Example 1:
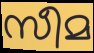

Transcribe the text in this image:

സീമ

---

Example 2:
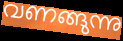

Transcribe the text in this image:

വണങ്ങുന്നു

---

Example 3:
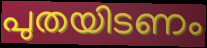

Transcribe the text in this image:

പുതയിടണം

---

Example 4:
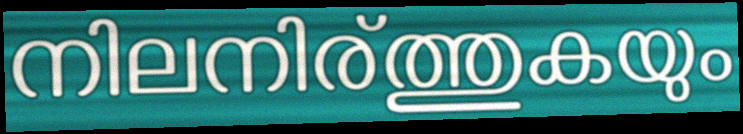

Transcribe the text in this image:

നിലനിര്ത്തുകയും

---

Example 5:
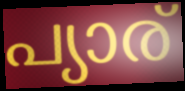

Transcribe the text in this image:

പ്യാര്